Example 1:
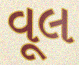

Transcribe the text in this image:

વૂલ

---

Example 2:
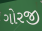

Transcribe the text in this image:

ગોરજી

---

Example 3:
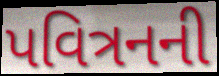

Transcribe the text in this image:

પવિત્રનની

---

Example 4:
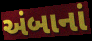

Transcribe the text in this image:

અંબાનાં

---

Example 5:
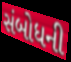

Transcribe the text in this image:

સંબોધની